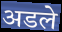
अडले